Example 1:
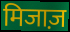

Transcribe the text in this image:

मिजाज़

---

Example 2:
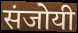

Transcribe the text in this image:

संजोयी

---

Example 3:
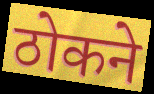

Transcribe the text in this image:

ठोकने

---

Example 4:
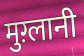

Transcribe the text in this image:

मुग़्लानी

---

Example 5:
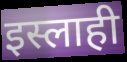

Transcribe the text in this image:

इस्लाही